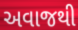
અવાજથી